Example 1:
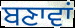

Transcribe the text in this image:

ਬਣਾਵਾਂ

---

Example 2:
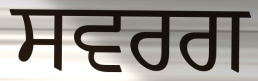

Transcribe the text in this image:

ਸਵਰਗ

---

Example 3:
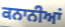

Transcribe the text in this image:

ਕਨਾਨੀਆਂ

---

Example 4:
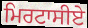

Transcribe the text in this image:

ਮਿਰਟਾਸੀਏ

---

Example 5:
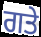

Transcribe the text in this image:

ਗਤੇ